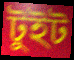
টুইট